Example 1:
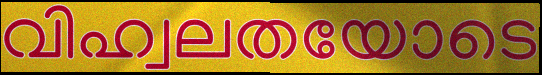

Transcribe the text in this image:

വിഹ്വലതയോടെ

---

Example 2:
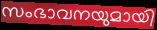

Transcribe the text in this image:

സംഭാവനയുമായി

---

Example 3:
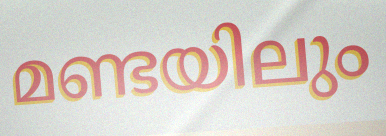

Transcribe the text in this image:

മണ്ടയിലും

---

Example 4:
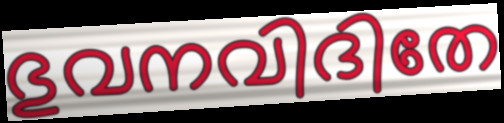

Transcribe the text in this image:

ഭുവനവിദിതേ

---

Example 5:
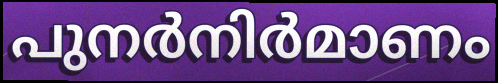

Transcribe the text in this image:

പുനർനിർമാണം